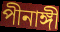
পীনাঙ্গী